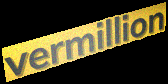
vermillion